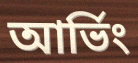
আর্ভিং